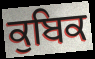
ਕੁਬਿਕ